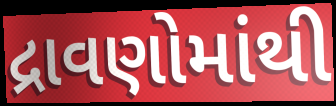
દ્રાવણોમાંથી